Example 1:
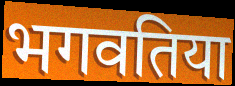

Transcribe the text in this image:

भगवतिया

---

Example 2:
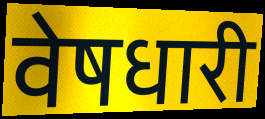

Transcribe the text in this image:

वेषधारी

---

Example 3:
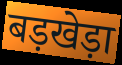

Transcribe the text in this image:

बड़खेड़ा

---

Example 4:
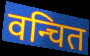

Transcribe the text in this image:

वन्चित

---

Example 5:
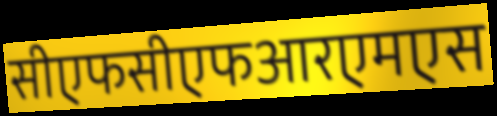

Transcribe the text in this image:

सीएफसीएफआरएमएस